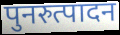
पुनरुत्पादन